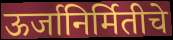
ऊर्जानिर्मितीचे